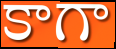
కాగా